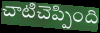
చాటిచెప్పింది